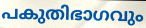
പകുതിഭാഗവും